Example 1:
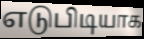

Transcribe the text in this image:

எடுபிடியாக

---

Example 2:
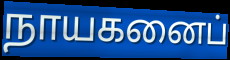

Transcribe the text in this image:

நாயகனைப்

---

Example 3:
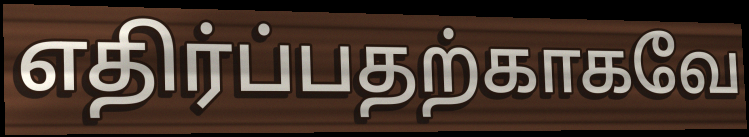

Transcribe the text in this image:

எதிர்ப்பதற்காகவே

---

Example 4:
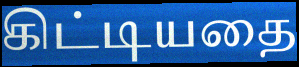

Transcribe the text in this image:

கிட்டியதை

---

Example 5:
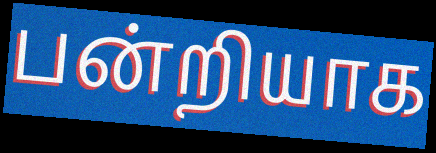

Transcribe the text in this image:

பன்றியாக